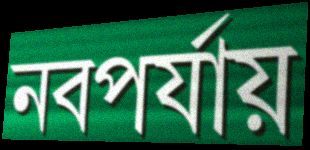
নবপর্যায়